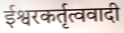
ईश्वरकर्तृत्ववादी